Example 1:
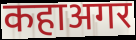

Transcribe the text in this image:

कहाअगर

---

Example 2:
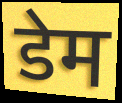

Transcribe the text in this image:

डेम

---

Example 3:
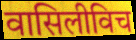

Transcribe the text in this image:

वासिलीविच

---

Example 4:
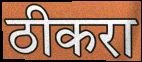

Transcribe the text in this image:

ठीकरा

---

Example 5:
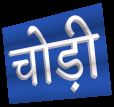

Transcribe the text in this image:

चोड़ी